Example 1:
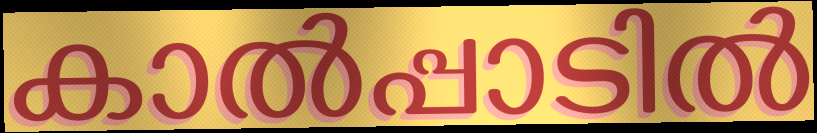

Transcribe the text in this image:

കാൽപ്പാടിൽ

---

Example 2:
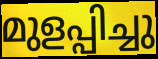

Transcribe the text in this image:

മുളപ്പിച്ചു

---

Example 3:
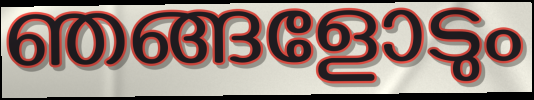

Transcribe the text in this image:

ഞങ്ങളോടും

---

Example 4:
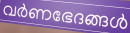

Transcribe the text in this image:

വർണഭേദങ്ങൾ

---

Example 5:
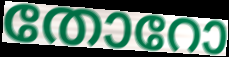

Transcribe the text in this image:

തോറോ